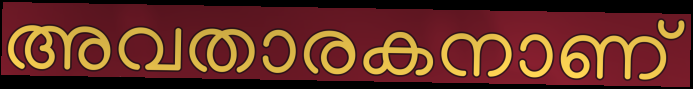
അവതാരകനാണ്